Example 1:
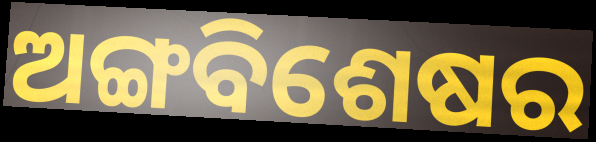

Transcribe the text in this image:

ଅଙ୍ଗବିଶେଷର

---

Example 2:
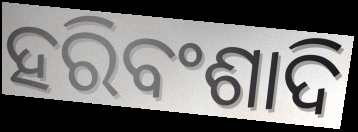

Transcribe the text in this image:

ହରିବଂଶାଦି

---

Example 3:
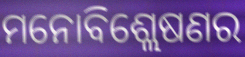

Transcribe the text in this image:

ମନୋବିଶ୍ଲେଷଣର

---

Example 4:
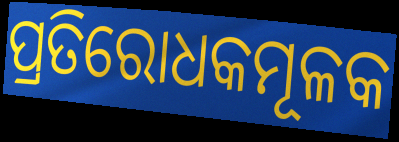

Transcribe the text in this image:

ପ୍ରତିରୋଧକମୂଳକ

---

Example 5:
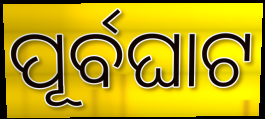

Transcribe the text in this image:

ପୂର୍ବଘାଟ